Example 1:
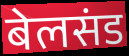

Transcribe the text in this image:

बेलसंड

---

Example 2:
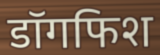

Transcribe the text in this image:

डॉगफिश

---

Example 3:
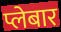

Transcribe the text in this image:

प्लेबार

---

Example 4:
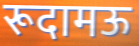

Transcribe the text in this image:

रूदामऊ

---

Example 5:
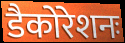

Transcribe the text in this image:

डैकोरेशनः